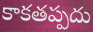
కాకతప్పదు